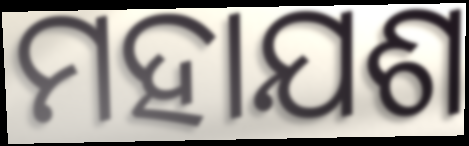
ମହାଯଶ